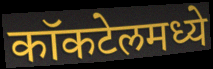
कॉकटेलमध्ये